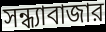
সন্ধ্যাবাজার